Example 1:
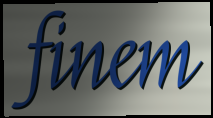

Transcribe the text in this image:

finem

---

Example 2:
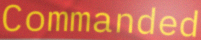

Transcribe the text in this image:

Commanded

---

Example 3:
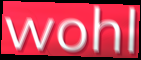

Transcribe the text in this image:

wohl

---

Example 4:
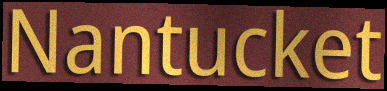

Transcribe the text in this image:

Nantucket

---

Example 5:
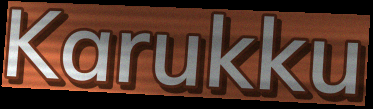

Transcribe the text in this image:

Karukku